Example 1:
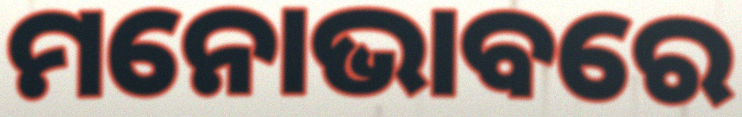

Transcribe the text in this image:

ମନୋଭାବରେ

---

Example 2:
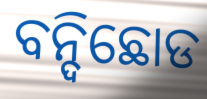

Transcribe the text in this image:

ବନ୍ଦିଛୋଡ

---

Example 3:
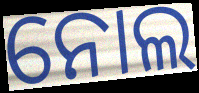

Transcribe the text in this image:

ନୋଲ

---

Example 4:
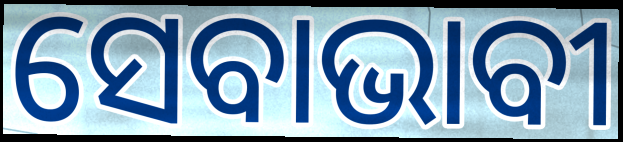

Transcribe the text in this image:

ସେବାଭାବୀ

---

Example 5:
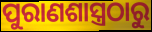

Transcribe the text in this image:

ପୁରାଣଶାସ୍ତ୍ରଠାରୁ